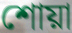
শোয়া